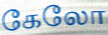
கேலோ